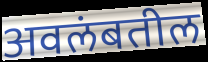
अवलंबतील